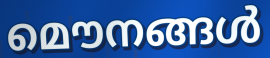
മൌനങ്ങൾ